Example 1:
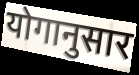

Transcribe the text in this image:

योगानुसार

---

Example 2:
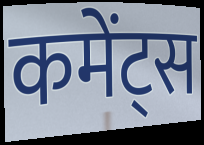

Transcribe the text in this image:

कमेंट्स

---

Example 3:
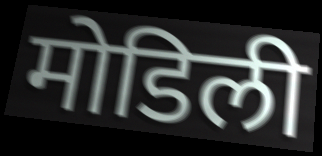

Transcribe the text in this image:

मोडिली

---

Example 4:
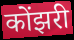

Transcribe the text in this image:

कोंझरी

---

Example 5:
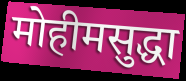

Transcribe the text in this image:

मोहीमसुद्धा